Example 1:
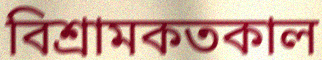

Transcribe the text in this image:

বিশ্রামকতকাল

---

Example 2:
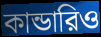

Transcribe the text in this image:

কান্ডারিও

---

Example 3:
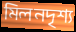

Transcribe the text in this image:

মিলনদৃশ্য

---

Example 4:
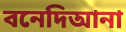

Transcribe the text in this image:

বনেদিআনা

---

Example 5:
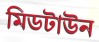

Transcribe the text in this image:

মিডটাউন